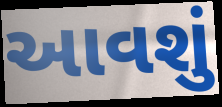
આવશું